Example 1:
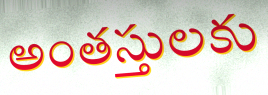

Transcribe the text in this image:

అంతస్తులకు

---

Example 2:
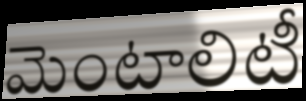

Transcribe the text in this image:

మెంటాలిటీ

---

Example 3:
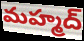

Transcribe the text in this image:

మహ్మద్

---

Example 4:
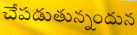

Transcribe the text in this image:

చేపడుతున్నందున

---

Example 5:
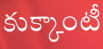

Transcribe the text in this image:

కుక్కాంటీ